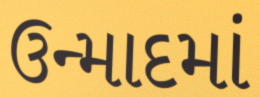
ઉન્માદમાં